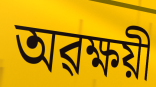
অৱক্ষয়ী